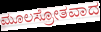
ಮೂಲಸ್ರೋತವಾದ